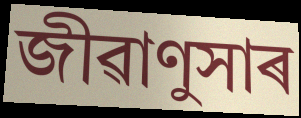
জীৱাণুসাৰ